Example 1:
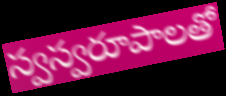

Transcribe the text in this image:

స్వస్వరూపాలతో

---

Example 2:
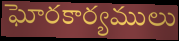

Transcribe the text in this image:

ఘోరకార్యములు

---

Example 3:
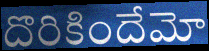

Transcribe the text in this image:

దొరికిందేమో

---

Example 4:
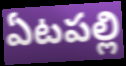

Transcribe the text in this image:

ఏటపల్లి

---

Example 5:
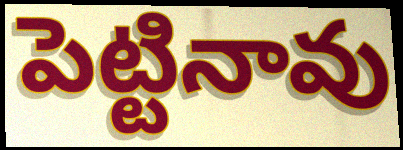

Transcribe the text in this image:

పెట్టినావు